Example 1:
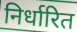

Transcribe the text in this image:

निर्धारित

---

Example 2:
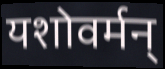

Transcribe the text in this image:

यशोवर्मन्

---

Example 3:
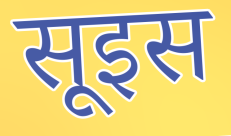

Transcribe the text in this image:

सूइस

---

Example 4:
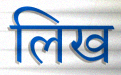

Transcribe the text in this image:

लिख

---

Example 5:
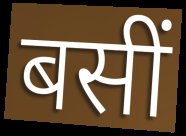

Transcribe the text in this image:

बसीं